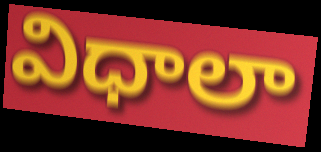
విధాలా